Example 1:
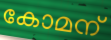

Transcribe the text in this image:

കോമന്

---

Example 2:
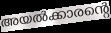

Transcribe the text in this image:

അയൽക്കാരന്റെ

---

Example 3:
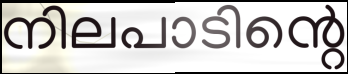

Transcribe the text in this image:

നിലപാടിന്റെ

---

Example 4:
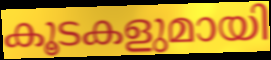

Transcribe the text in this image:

കൂടകളുമായി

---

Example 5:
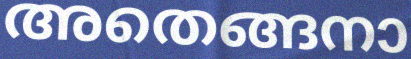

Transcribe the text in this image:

അതെങ്ങനാ